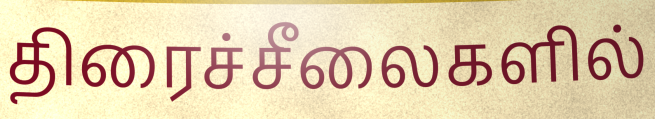
திரைச்சீலைகளில்